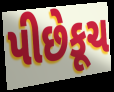
પીછેકૂચ